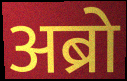
अब्रो